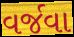
વર્જવા